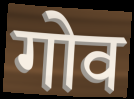
गोव